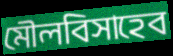
মৌলবিসাহেব